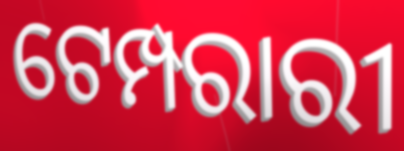
ଟେମ୍ପରାରୀ